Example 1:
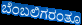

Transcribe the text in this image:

ಬೆಂಬಲಿಗರಂತೂ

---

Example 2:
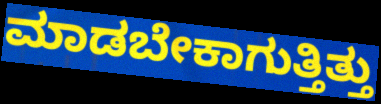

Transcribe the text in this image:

ಮಾಡಬೇಕಾಗುತ್ತಿತ್ತು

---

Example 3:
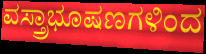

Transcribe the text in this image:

ವಸ್ತ್ರಾಭೂಷಣಗಳಿಂದ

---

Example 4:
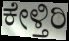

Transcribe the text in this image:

ಕೇಳ್ತಿರಿ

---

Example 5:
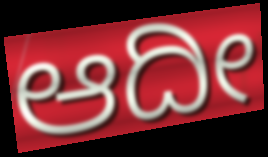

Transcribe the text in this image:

ಆದೀ